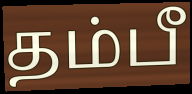
தம்பீ